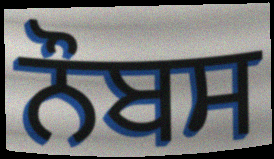
ਨੌਬਸ